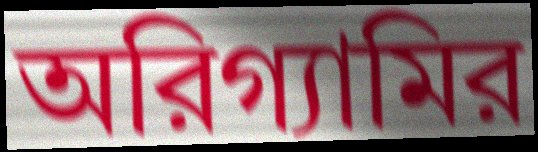
অরিগ্যামির